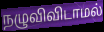
நழுவிவிடாமல்